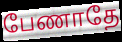
பேணாதே